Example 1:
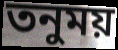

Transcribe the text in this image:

তনুময়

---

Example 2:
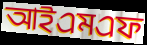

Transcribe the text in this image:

আইএমএফ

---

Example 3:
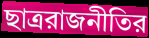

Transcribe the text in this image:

ছাত্ররাজনীতির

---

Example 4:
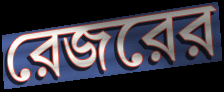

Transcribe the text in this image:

রেজরের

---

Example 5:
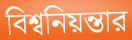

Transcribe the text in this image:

বিশ্বনিয়ন্তার